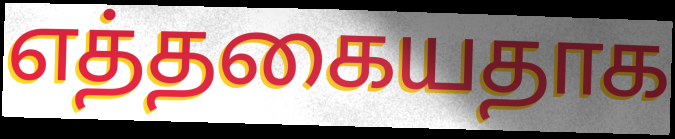
எத்தகையதாக